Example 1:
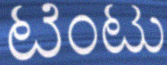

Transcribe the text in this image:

ಟೆಂಟು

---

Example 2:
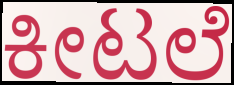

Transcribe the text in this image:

ಕೀಟಲೆ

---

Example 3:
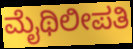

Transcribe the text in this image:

ಮೈಥಿಲೀಪತಿ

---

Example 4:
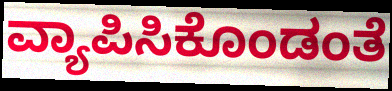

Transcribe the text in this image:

ವ್ಯಾಪಿಸಿಕೊಂಡಂತೆ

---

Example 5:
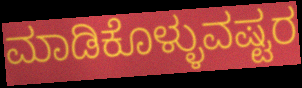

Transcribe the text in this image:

ಮಾಡಿಕೊಳ್ಳುವಷ್ಟರ